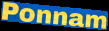
Ponnam